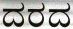
ದರದ